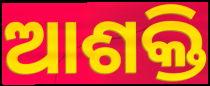
ଆଶକ୍ତି